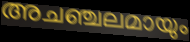
അചഞ്ചലമായും